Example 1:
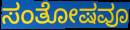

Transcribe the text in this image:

ಸಂತೋಷವೂ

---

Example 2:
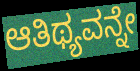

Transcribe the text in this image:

ಆತಿಥ್ಯವನ್ನೇ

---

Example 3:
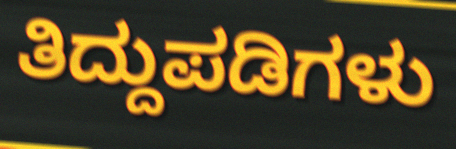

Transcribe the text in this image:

ತಿದ್ದುಪಡಿಗಳು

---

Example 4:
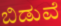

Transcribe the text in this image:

ಬಿಡುವೆ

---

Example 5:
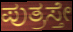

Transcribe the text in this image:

ಪುತ್ರಸ್ತೇ